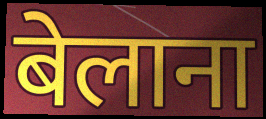
बेलाना